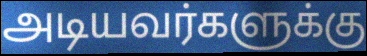
அடியவர்களுக்கு